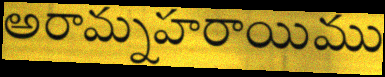
అరామ్నహరాయిము